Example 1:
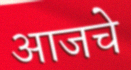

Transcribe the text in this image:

आजचे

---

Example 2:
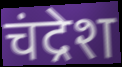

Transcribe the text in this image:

चंद्रेश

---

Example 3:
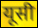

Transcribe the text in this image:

यूसी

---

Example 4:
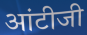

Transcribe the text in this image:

आंटीजी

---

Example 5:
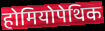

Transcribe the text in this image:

होमियोपेथिक